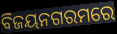
ବିଜୟନଗରମରେ